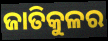
ଜାତିକୁଳର